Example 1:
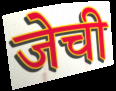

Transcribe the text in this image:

जेची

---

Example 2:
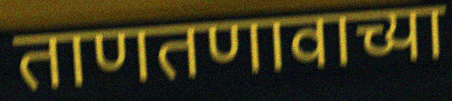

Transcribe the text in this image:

ताणतणावाच्या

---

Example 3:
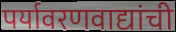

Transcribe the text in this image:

पर्यावरणवाद्यांची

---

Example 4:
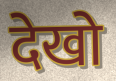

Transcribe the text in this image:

देखो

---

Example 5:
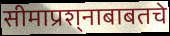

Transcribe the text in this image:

सीमाप्रश्नाबाबतचे